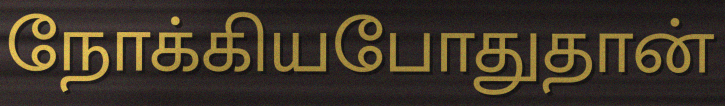
நோக்கியபோதுதான்